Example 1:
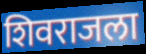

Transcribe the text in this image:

शिवराजला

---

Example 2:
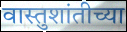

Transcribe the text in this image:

वास्तुशांतीच्या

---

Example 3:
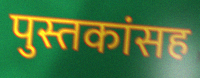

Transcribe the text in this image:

पुस्तकांसह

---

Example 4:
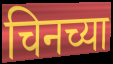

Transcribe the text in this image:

चिनच्या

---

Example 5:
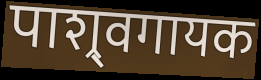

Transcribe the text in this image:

पाश्र्वगायक